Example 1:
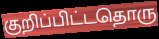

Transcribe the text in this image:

குறிப்பிட்டதொரு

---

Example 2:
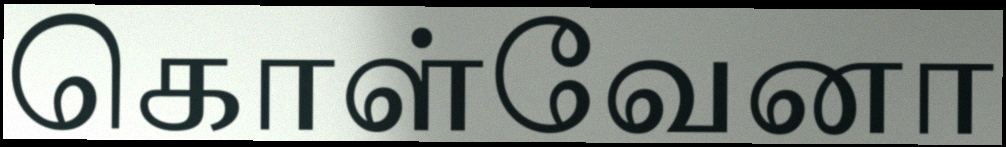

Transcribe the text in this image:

கொள்வேனா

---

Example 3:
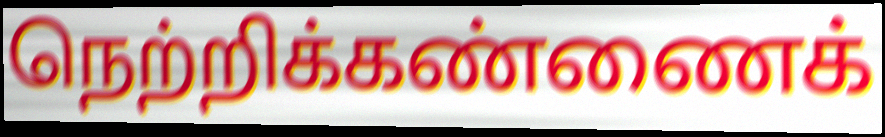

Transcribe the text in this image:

நெற்றிக்கண்ணைக்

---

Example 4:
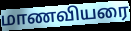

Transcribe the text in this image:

மாணவியரை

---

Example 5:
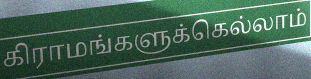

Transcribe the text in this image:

கிராமங்களுக்கெல்லாம்